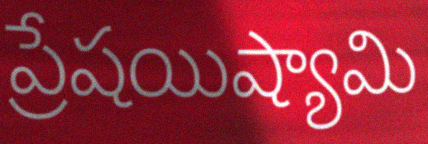
ప్రేషయిష్యామి